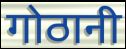
गोठानी